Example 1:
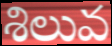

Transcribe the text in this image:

శిలువ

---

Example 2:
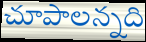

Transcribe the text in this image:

చూపాలన్నది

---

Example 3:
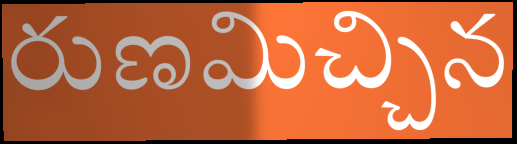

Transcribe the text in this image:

రుణమిచ్చిన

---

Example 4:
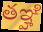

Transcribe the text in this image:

తఞ్హి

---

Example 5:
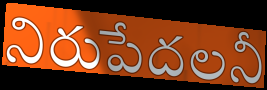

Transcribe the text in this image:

నిరుపేదలనీ